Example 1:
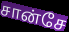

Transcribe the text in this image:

சான்சே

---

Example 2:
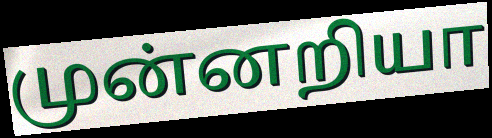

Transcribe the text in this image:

முன்னறியா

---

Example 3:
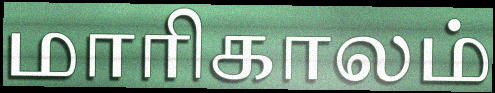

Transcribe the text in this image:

மாரிகாலம்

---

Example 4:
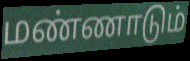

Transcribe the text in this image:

மண்ணாடும்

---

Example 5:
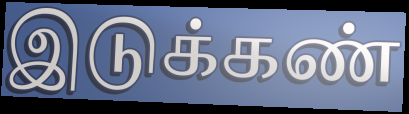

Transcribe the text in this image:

இடுக்கண்